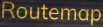
Routemap